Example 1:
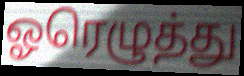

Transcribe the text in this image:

ஓரெழுத்து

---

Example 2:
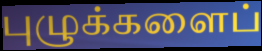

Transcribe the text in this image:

புழுக்களைப்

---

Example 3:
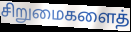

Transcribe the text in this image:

சிறுமைகளைத்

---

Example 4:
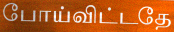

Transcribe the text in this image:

போய்விட்டதே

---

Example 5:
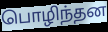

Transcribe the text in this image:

பொழிந்தன